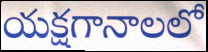
యక్షగానాలలో